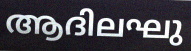
ആദിലഘു